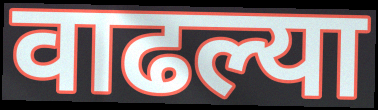
वाढल्या